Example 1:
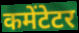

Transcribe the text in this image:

कमेंटेटर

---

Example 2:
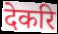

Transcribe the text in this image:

देकरि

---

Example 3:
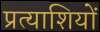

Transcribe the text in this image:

प्रत्‍याशियों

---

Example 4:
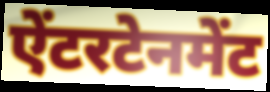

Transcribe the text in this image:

ऐंटरटेनमेंट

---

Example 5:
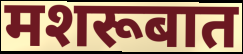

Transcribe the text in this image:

मशरूबात